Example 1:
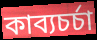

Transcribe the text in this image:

কাব্যচর্চা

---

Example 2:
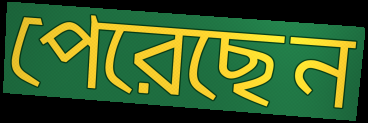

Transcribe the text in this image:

পেরেছেন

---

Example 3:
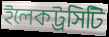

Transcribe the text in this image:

ইলেকট্রসিটি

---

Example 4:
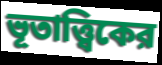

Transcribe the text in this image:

ভূতাত্ত্বিকের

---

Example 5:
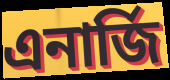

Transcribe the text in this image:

এনার্জি